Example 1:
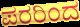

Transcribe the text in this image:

ಪರರಿಂದ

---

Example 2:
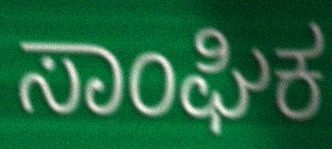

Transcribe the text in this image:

ಸಾಂಘಿಕ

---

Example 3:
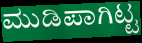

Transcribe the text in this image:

ಮುಡಿಪಾಗಿಟ್ಟ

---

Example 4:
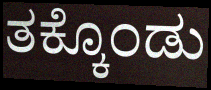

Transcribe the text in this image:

ತಕ್ಕೊಂಡು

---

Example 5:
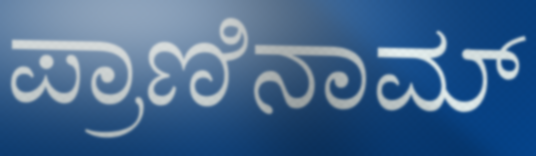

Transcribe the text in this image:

ಪ್ರಾಣಿನಾಮ್